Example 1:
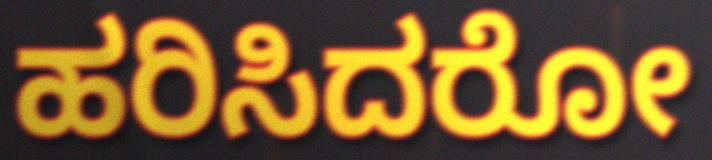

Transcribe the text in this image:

ಹರಿಸಿದರೋ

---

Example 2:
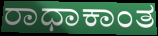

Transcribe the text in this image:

ರಾಧಾಕಾಂತ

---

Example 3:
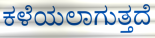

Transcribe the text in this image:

ಕಳೆಯಲಾಗುತ್ತದೆ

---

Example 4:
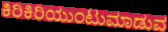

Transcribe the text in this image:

ಕಿರಿಕಿರಿಯುಂಟುಮಾಡುವ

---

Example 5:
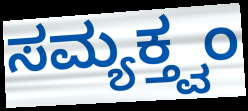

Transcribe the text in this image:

ಸಮ್ಯಕ್ತ್ವಂ